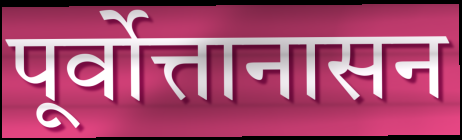
पूर्वोत्तानासन